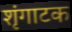
शृंगाटक